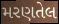
મરણતેલ